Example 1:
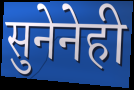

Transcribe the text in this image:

सुनेनेही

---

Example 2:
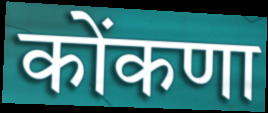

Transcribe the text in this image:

कोंकणा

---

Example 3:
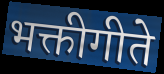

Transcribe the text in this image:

भक्तीगीते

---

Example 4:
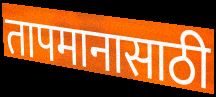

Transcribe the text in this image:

तापमानासाठी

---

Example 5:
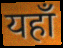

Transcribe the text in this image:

यहाँ